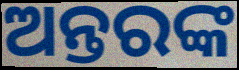
ଅନ୍ତରଙ୍କ